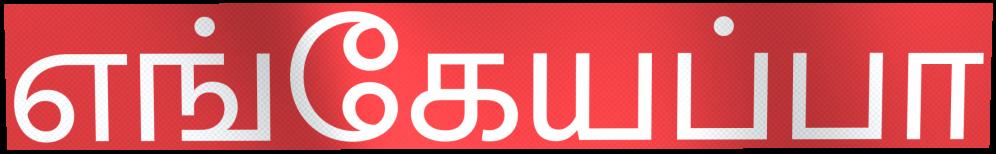
எங்கேயப்பா